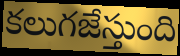
కలుగజేస్తుంది